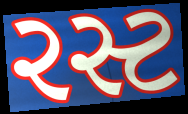
રસ્ટ